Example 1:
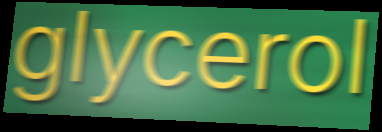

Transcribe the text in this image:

glycerol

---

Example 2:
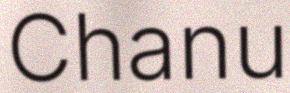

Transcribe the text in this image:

Chanu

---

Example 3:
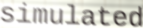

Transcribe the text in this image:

simulated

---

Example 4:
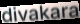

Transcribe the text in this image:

divakara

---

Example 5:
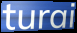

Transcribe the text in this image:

turai